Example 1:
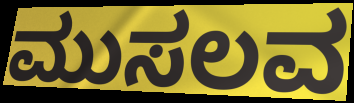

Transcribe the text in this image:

ಮುಸಲವ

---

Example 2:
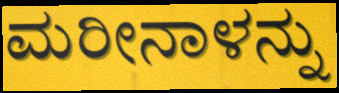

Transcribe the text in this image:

ಮರೀನಾಳನ್ನು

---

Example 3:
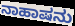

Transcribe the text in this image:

ನಾಹಾಷನು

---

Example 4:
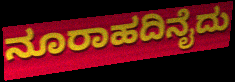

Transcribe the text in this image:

ನೂರಾಹದಿನೈದು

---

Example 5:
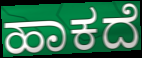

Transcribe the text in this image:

ಹಾಕದೆ